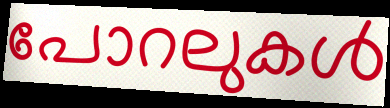
പോറലുകൾ